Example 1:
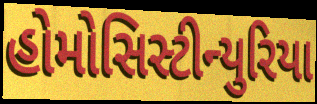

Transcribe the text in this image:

હોમોસિસ્ટીન્યુરિયા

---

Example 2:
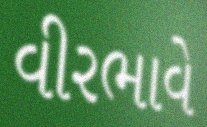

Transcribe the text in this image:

વીરભાવે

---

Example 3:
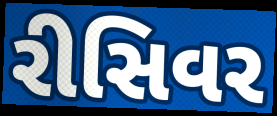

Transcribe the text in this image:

રીસિવર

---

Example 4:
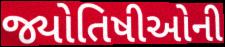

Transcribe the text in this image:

જ્યોતિષીઓની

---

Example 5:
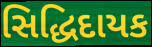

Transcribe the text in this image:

સિદ્ધિદાયક